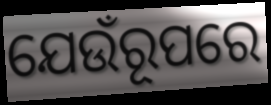
ଯେଉଁରୂପରେ